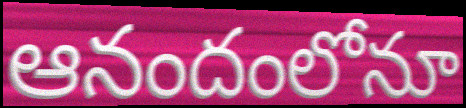
ఆనందంలోనూ